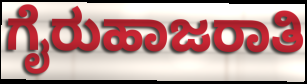
ಗೈರುಹಾಜರಾತಿ